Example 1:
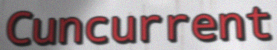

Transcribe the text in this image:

Cuncurrent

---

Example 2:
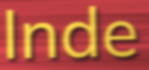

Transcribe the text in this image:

Inde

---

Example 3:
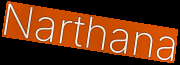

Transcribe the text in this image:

Narthana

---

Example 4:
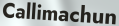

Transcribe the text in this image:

Callimachun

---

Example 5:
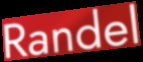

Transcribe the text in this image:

Randel